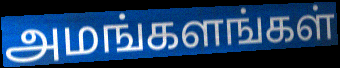
அமங்களங்கள்